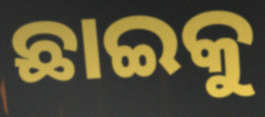
ଛାଇକୁ